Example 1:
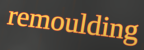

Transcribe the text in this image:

remoulding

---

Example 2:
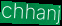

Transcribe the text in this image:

chhanj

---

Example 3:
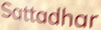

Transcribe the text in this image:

Sattadhar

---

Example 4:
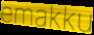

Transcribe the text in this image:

emakku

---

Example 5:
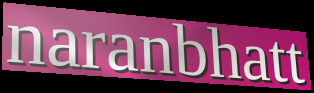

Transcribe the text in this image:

naranbhatt